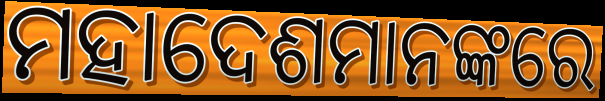
ମହାଦେଶମାନଙ୍କରେ